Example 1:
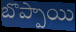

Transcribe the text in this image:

బొప్పాయి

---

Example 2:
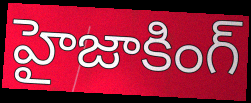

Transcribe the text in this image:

హైజాకింగ్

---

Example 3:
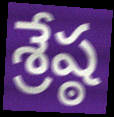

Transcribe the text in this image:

శ్రేష్ఠ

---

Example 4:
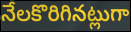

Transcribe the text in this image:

నేలకొరిగినట్లుగా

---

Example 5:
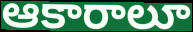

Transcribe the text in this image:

ఆకారాలూ